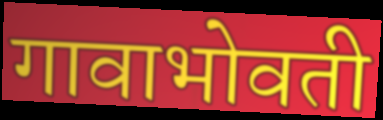
गावाभोवती